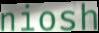
niosh